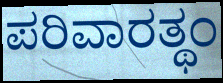
ಪರಿವಾರತ್ಥಂ